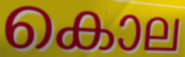
കൊല